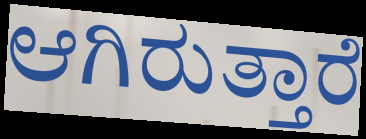
ಆಗಿರುತ್ತಾರೆ